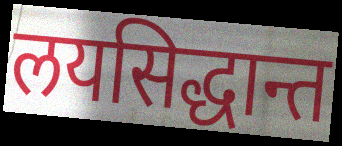
लयसिद्धान्त